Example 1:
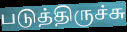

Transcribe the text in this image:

படுத்திருச்சு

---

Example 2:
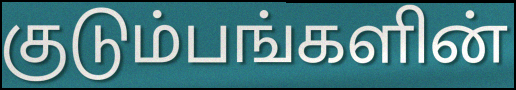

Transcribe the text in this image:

குடும்பங்களின்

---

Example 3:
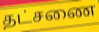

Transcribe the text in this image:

தட்சணை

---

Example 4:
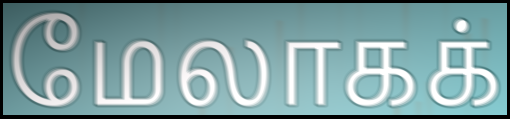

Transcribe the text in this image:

மேலாகக்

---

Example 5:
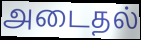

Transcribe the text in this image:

அடைதல்